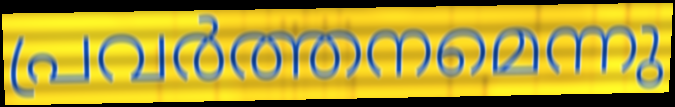
പ്രവർത്തനമെന്നു